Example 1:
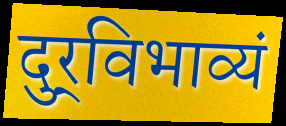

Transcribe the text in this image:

दुर्विभाव्यं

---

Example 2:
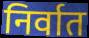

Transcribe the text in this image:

निर्वात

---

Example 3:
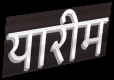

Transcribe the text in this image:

यारीम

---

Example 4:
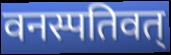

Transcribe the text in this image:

वनस्पतिवत्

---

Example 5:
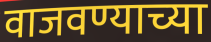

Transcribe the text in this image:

वाजवण्याच्या